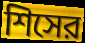
শিসের